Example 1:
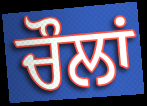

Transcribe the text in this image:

ਚੌਲਾਂ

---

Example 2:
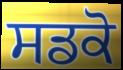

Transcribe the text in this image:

ਸਡਕੋ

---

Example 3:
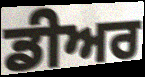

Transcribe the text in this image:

ਡੀਅਰ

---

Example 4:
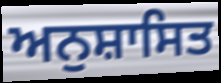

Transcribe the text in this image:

ਅਨੁਸ਼ਾਸਿਤ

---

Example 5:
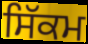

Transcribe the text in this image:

ਸਿੱਕਮ